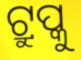
ଟ୍ରୁପ୍କୁ